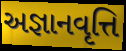
અજ્ઞાનવૃત્તિ